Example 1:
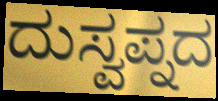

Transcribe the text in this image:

ದುಸ್ವಪ್ನದ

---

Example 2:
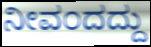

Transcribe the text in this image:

ನೀವಂದದ್ದು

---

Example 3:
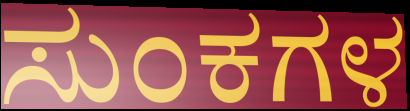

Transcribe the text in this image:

ಸುಂಕಗಳ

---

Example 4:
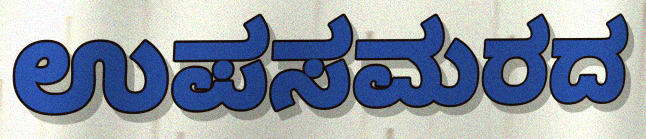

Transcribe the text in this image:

ಉಪಸಮರದ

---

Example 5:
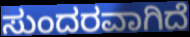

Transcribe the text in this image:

ಸುಂದರವಾಗಿದೆ